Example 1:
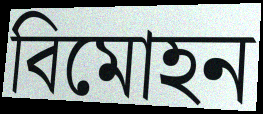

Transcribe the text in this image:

বিমোহন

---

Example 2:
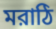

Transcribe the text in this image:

মরাঠি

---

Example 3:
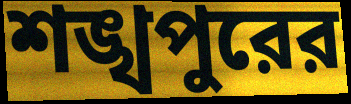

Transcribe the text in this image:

শঙ্খপুরের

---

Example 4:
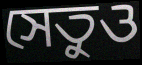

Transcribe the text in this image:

সেতুও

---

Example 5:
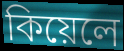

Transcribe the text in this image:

কিয়েলে